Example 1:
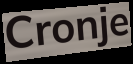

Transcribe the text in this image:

Cronje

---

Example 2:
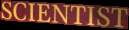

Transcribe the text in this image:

SCIENTIST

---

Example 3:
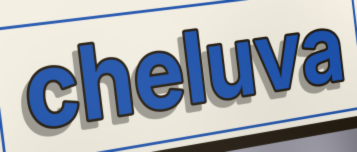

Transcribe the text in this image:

cheluva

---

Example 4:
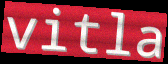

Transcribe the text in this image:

vitla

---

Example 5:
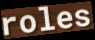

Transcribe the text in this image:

roles